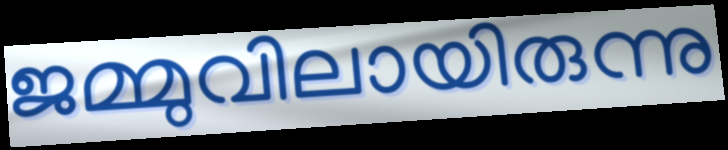
ജമ്മുവിലായിരുന്നു